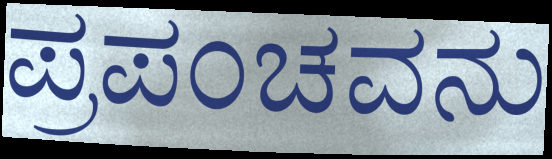
ಪ್ರಪಂಚವನು